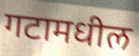
गटामधील